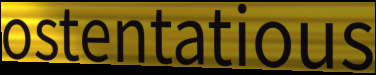
ostentatious